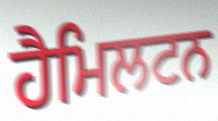
ਹੈਮਿਲਟਨ